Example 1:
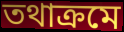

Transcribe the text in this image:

তথাক্ৰমে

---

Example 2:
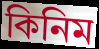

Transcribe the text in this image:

কিনিম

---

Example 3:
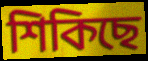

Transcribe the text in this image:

শিকিছে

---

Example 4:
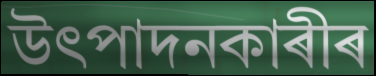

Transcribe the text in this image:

উৎপাদনকাৰীৰ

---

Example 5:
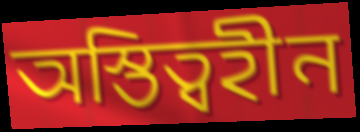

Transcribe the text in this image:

অস্তিত্বহীন